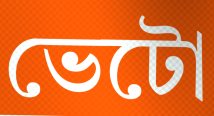
ভেটো